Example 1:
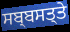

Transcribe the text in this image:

ਸਬ੍ਬਸਤ੍ਤੇ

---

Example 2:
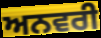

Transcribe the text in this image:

ਅਨਵਰੀ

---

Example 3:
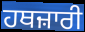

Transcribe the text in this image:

ਹਥਜ਼ਾਰੀ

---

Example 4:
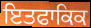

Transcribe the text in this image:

ਇਤਫਾਕਿਕ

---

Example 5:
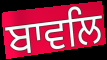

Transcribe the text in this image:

ਬਾਵਲਿ